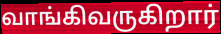
வாங்கிவருகிறார்